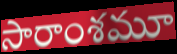
సారాంశమూ